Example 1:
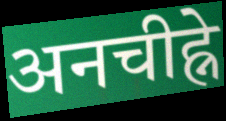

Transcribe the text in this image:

अनचीह्ने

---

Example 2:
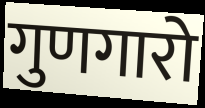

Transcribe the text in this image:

गुणगारो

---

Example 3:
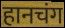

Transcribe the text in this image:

हानचंग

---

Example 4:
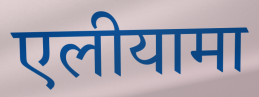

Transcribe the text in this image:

एलीयामा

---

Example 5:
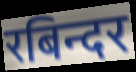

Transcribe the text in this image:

रबिन्दर